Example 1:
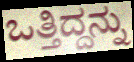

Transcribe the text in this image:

ಒತ್ತಿದ್ದನ್ನು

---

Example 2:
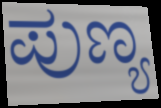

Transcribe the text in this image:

ಪುಣ್ಯ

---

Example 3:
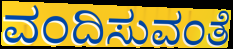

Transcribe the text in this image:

ವಂದಿಸುವಂತೆ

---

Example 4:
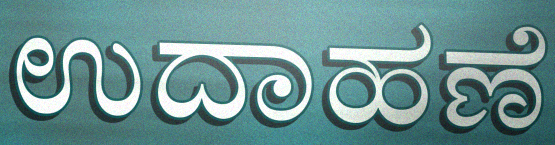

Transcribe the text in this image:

ಉದಾಹಣೆ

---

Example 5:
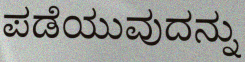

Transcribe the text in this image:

ಪಡೆಯುವುದನ್ನು